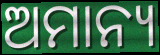
ଅମାନ୍ଯ